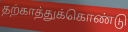
தற்காத்துக்கொண்டு